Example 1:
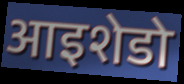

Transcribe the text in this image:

आइशेडो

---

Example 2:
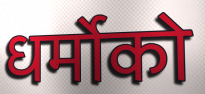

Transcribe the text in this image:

धर्मोको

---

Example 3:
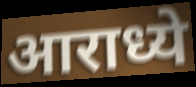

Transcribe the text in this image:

आराध्ये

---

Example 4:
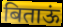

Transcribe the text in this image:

बिताऊं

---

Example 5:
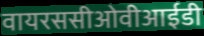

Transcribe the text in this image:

वायरससीओवीआईडी